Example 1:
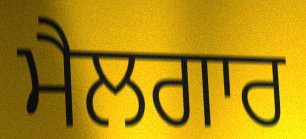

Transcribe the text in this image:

ਮੈਲਗਾਰ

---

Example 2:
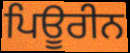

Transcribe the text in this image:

ਪਿਊਰੀਨ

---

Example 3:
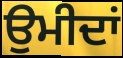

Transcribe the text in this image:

ਉਮੀਦਾਂ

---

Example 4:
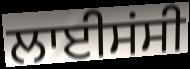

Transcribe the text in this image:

ਲਾਈਸਂਸੀ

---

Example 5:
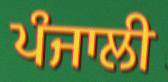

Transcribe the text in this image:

ਪੰਜਾਲੀ